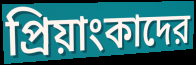
প্রিয়াংকাদের